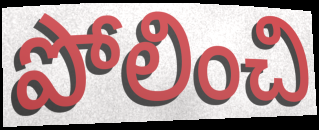
పోలించి